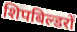
शिपबिल्डरों